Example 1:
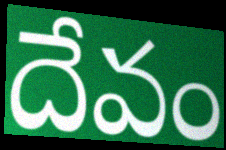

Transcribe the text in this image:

దేవం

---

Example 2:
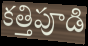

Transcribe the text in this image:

కత్తిపూడి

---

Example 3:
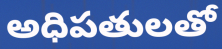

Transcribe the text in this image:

అధిపతులతో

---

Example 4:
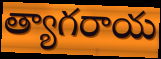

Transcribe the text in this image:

త్యాగరాయ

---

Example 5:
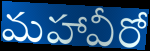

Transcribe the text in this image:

మహావీరో